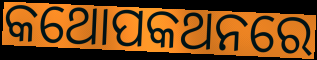
କଥୋପକଥନରେ